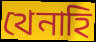
থেনাহি